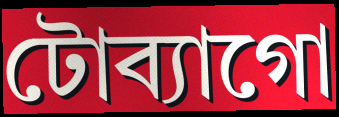
টোব্যাগো